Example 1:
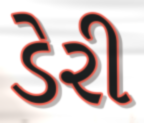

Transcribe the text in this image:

ડેરી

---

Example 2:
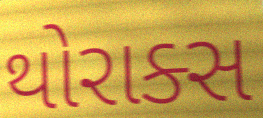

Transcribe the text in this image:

થોરાક્સ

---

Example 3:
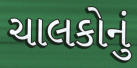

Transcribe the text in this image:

ચાલકોનું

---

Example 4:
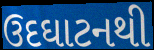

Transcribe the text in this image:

ઉદઘાટનથી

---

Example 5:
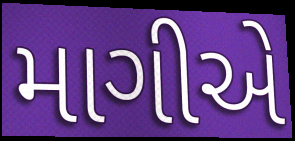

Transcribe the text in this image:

માગીએ